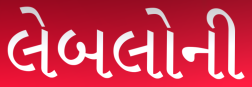
લેબલોની